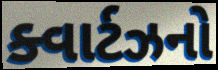
ક્વાર્ટઝનો